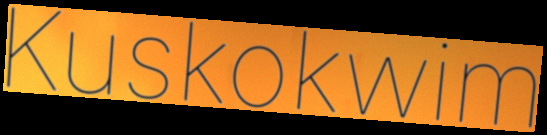
Kuskokwim